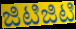
ಜಿಟಿಜಿಟಿ